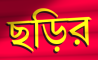
ছড়ির